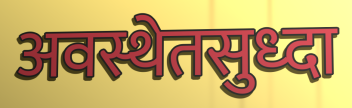
अवस्थेतसुध्दा